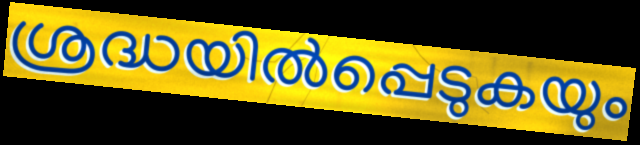
ശ്രദ്ധയിൽപ്പെടുകയും